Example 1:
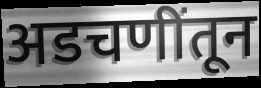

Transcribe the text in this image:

अडचणींतून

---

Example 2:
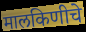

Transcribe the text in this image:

मालकिणीचे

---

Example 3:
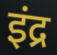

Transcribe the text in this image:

इंद्र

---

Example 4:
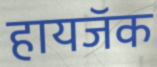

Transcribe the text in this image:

हायजॅक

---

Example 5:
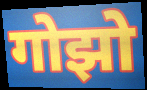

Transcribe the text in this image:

गोझो